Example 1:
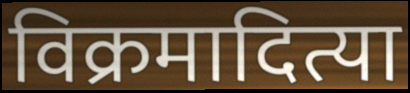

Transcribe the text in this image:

विक्रमादित्या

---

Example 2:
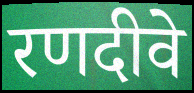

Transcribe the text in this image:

रणदीवे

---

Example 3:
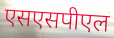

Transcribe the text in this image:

एसएसपीएल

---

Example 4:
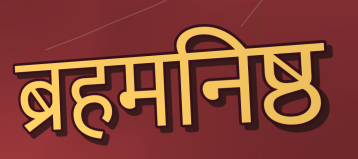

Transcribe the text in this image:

ब्रहमनिष्ठ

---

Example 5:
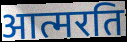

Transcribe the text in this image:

आत्मरति